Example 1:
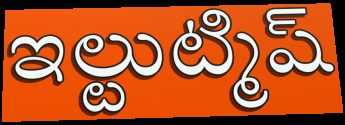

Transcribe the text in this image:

ఇల్టుట్మిష్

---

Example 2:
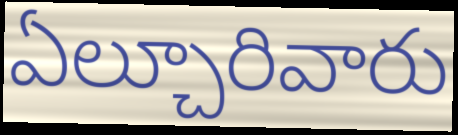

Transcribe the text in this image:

ఏల్చూరివారు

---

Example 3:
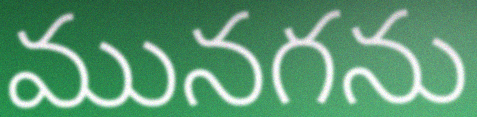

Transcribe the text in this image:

మునగను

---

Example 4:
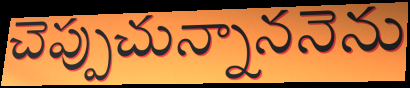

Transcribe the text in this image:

చెప్పుచున్నాననెను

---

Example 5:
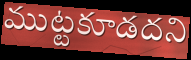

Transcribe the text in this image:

ముట్టకూడదని